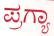
ಪ್ರಗ್ಯಾ